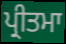
ਪ੍ਰੀਤਮਾ